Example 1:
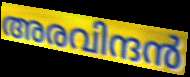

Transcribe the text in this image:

അരവിന്ദൻ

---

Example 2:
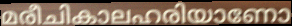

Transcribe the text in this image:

മരീചികാലഹരിയാണോ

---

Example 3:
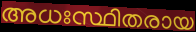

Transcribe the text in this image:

അധഃസ്ഥിതരായ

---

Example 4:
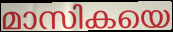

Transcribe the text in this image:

മാസികയെ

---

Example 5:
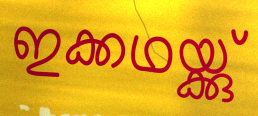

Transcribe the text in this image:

ഇക്കഥയ്ക്കു്